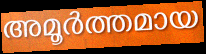
അമൂർത്തമായ